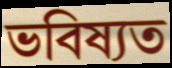
ভবিষ্যত